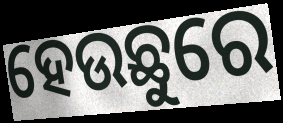
ହେଉଛୁରେ